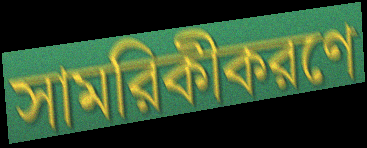
সামরিকীকরণে